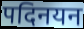
पदिनयन